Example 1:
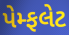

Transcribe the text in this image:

પેમ્ફલેટ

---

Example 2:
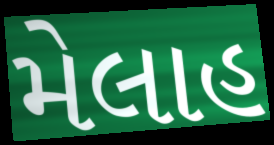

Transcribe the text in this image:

મેલાહ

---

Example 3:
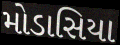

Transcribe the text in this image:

મોડાસિયા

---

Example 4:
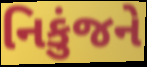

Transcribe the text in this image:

નિકુંજને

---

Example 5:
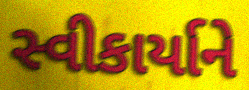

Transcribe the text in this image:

સ્વીકાર્યાને